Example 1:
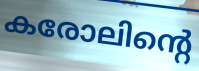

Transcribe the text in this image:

കരോലിന്റെ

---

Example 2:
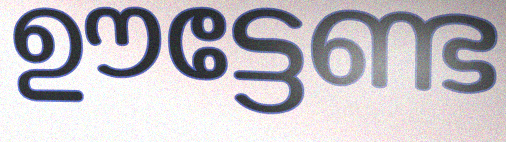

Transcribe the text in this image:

ഊട്ടേണ്ട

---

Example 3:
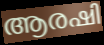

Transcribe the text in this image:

ആരഷി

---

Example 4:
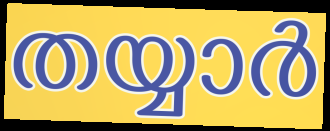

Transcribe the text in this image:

തയ്യാർ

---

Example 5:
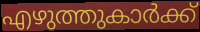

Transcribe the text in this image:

എഴുത്തുകാർക്ക്